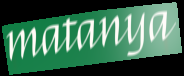
matanya